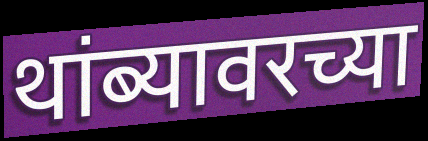
थांब्यावरच्या